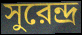
সুরেন্দ্র